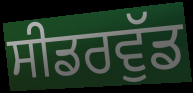
ਸੀਡਰਵੁੱਡ